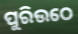
ପୁରିଉଠେ